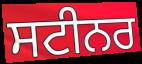
ਸਟੀਨਰ